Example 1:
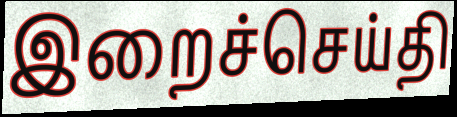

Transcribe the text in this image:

இறைச்செய்தி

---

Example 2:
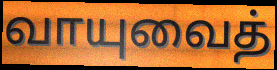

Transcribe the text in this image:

வாயுவைத்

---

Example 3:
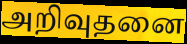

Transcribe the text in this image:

அறிவுதனை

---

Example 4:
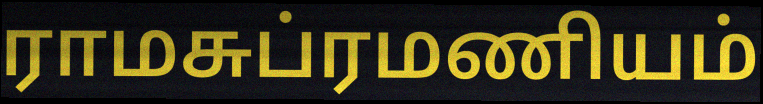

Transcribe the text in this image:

ராமசுப்ரமணியம்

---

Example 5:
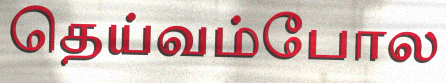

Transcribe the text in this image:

தெய்வம்போல